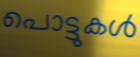
പൊട്ടുകൾ